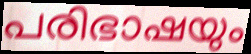
പരിഭാഷയും